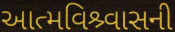
આત્મવિશ્ર્વાસની